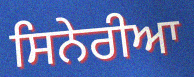
ਸਿਨੇਰੀਆ